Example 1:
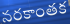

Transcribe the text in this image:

నరకాంతక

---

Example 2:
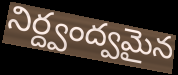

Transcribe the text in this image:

నిర్ద్వంద్వమైన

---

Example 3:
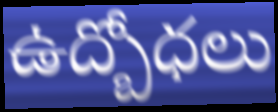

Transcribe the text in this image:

ఉద్బోధలు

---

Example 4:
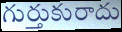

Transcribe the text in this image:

గుర్తుకురాదు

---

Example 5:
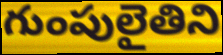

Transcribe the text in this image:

గుంపులైతిని